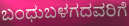
ಬಂಧುಬಳಗದವರಿಗೆ